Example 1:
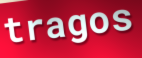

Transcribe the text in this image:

tragos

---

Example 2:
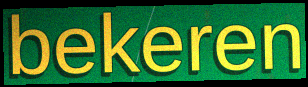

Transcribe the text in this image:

bekeren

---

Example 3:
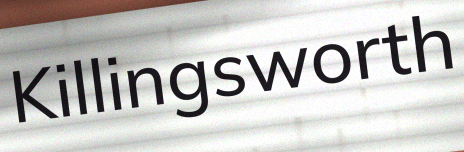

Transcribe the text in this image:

Killingsworth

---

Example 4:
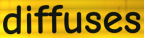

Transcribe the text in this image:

diffuses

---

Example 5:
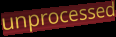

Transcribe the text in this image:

unprocessed